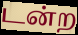
டன்ற